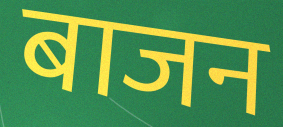
बाजन